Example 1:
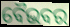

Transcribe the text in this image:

ବୈଭବର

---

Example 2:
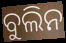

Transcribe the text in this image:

ବୁଲିନ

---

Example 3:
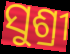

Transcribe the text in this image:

ସୁଶ୍ରୀ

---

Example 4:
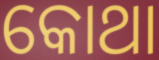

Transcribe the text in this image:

କୋଥା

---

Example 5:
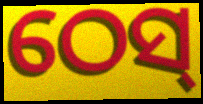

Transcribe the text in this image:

ଠେସ୍